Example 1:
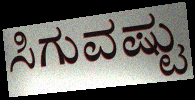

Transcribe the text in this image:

ಸಿಗುವಷ್ಟು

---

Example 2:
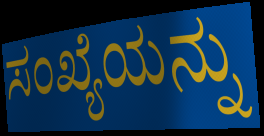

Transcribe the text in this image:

ಸಂಖ್ಯೆಯನ್ನು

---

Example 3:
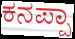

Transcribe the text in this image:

ಕನಪ್ಪಾ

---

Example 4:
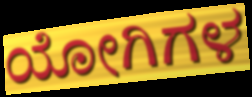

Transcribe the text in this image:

ಯೋಗಿಗಳ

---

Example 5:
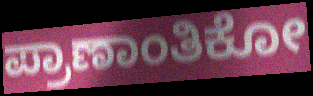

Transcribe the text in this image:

ಪ್ರಾಣಾಂತಿಕೋ